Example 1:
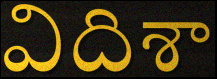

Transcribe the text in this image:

విదిశా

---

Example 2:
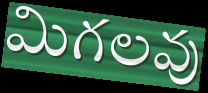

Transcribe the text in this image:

మిగలవు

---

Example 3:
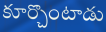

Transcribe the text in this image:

కూర్చొంటాడు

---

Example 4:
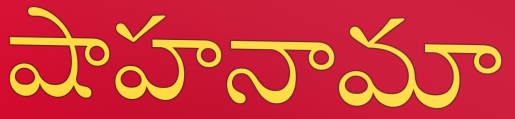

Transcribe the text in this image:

షాహనామా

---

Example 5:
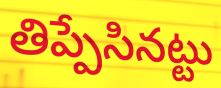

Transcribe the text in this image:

తిప్పేసినట్టు